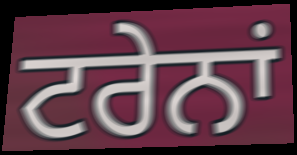
ਟਰੇਨਾਂ